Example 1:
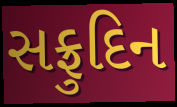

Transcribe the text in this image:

સફ્રુદિન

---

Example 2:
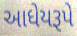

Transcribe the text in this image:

આધેયરૂપે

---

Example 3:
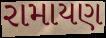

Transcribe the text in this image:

રામાયણ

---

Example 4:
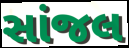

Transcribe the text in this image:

સાંજલ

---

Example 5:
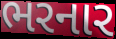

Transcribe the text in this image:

ભરનાર